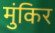
मुंकिर